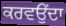
ਕਰਵਉਂਦਾ